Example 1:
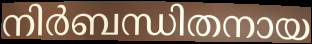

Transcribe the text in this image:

നിർബന്ധിതനായ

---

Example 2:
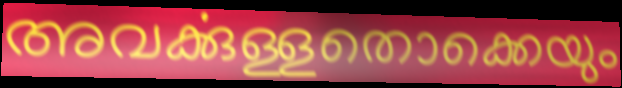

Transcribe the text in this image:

അവൎക്കുള്ളതൊക്കെയും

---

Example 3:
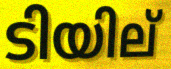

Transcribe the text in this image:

ടിയില്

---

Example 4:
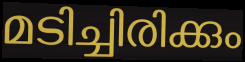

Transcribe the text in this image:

മടിച്ചിരിക്കും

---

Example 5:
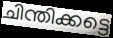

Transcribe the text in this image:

ചിന്തിക്കട്ടെ